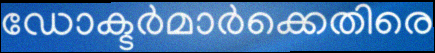
ഡോക്ടർമാർക്കെതിരെ